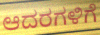
ಆದರಗಳಿಗೆ